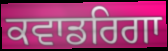
ਕਵਾਡਰਿਗਾ